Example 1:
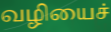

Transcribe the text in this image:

வழியைச்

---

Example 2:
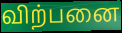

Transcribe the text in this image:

விற்பனை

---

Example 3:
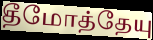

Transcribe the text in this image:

தீமோத்தேயு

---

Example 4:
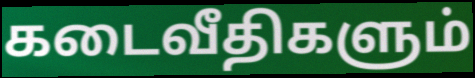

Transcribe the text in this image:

கடைவீதிகளும்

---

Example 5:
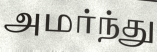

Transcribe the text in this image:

அமர்ந்து